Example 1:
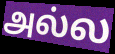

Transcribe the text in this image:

அல்ல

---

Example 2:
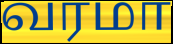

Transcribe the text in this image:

வரமா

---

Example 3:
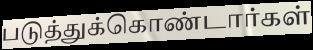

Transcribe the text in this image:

படுத்துக்கொண்டார்கள்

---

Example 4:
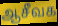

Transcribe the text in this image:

ஆசீவக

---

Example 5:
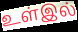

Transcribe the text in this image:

உள்இல்